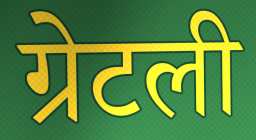
ग्रेटली